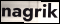
nagrik